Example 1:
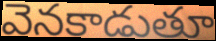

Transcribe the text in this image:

వెనకాడుతూ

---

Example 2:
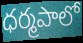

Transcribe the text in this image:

ధర్మపాలో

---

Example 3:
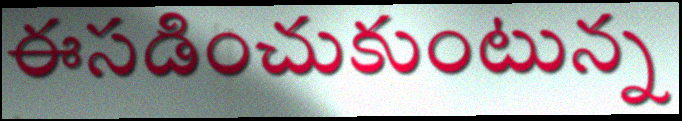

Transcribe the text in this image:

ఈసడించుకుంటున్న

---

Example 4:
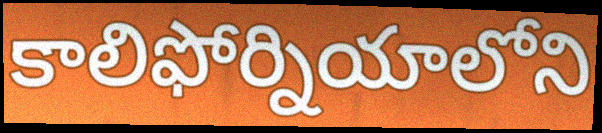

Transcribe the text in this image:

కాలిఫోర్నియాలోని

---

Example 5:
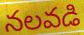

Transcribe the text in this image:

నలవడి